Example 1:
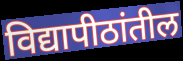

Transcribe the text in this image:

विद्यापीठांतील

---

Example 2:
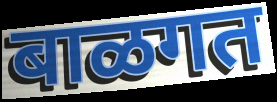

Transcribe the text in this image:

बाळगत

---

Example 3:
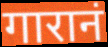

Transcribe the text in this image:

गारानं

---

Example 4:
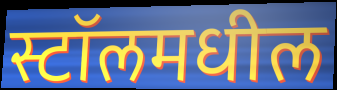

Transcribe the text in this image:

स्टॉलमधील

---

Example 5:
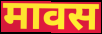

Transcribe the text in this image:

मावस